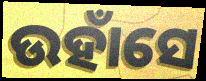
ଉହାଁସେ